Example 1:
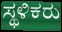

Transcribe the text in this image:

ಸ್ಥಳಿಕರು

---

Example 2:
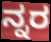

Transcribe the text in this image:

ನ್ನರ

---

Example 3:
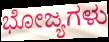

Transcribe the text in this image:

ಭೋಜ್ಯಗಳು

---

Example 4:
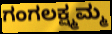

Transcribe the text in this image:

ಗಂಗಲಕ್ಷ್ಮಮ್ಮ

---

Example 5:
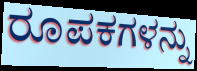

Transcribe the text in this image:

ರೂಪಕಗಳನ್ನು